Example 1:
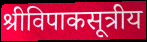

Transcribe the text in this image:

श्रीविपाकसूत्रीय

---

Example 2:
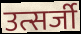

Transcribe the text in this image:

उत्सर्जी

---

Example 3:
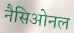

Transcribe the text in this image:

नैसिओनल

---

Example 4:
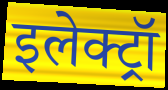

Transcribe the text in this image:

इलेक्ट्रॉ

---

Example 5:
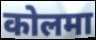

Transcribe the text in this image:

कोलमा